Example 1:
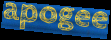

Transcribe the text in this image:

apogee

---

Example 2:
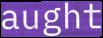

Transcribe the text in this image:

aught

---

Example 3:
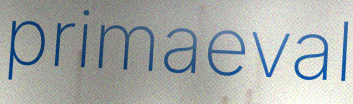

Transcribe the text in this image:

primaeval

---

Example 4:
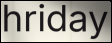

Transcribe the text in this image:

hriday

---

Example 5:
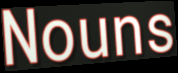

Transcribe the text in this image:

Nouns